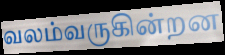
வலம்வருகின்றன